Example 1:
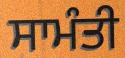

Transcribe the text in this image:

ਸਾਮੰਤੀ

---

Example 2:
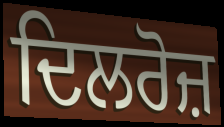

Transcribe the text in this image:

ਦਿਲਰੋਜ਼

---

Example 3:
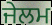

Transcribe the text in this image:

ਜੇਲਮ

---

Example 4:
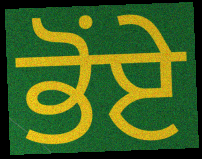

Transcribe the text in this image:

ਭੋਂਏ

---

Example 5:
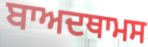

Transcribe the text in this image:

ਬਾਅਦਥਾਮਸ